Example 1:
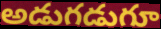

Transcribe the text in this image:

అడుగడుగూ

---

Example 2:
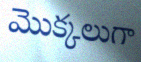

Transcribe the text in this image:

మొక్కలుగా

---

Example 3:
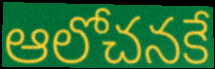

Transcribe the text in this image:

ఆలోచనకే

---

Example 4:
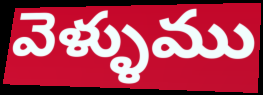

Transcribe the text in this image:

వెళ్ళుము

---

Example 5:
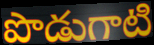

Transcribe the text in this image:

పొడుగాటి